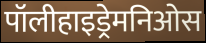
पॉलीहाइड्रेमनिओस